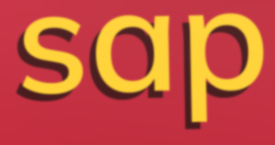
sap